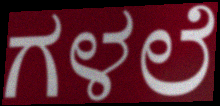
ಗಳಲೆ